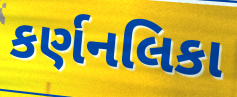
કર્ણનલિકા